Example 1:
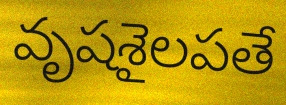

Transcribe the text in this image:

వృషశైలపతే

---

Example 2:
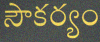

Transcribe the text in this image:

సౌకర్యం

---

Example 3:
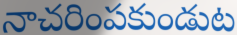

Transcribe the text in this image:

నాచరింపకుండుట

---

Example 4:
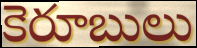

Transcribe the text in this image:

కెరూబులు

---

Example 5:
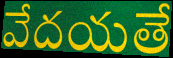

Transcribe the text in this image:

వేదయతే